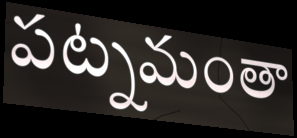
పట్నమంతా